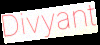
Divyant